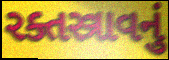
રક્તસ્ત્રાવનું